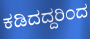
ಕಡಿದದ್ದರಿಂದ